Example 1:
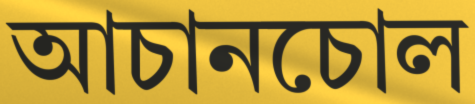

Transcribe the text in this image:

আচানচোল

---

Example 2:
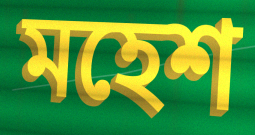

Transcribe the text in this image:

মহেশ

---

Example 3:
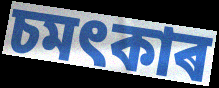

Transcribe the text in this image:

চমৎকাৰ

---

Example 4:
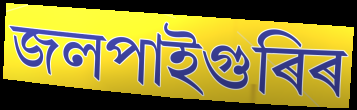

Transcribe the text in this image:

জলপাইগুৰিৰ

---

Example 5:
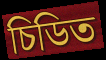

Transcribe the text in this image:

চিডিত